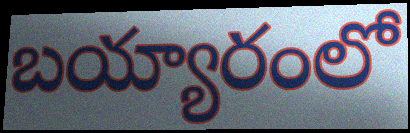
బయ్యారంలో